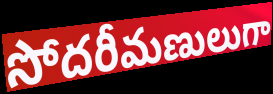
సోదరీమణులుగా